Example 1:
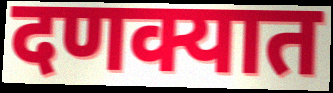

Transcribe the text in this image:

दणक्यात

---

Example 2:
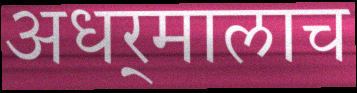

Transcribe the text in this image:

अधर्मालाच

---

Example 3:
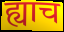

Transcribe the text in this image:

ह्याच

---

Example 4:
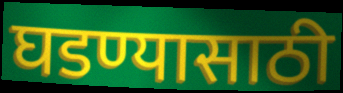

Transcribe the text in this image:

घडण्यासाठी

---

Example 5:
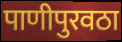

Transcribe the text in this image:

पाणीपुरवठा